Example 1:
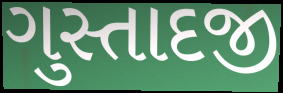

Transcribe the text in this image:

ગુસ્તાદજી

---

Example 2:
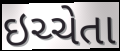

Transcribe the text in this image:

ઇચ્ચેતા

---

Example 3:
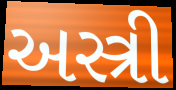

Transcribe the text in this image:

અસ્ત્રી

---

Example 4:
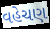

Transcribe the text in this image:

વહેચણ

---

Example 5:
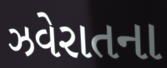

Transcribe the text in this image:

ઝવેરાતના